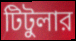
টিটুলার